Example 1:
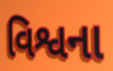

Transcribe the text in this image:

વિશ્વના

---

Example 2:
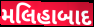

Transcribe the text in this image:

મલિહાબાદ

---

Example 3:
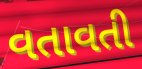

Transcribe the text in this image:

વતાવતી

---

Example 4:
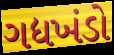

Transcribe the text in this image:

ગદ્યખંડો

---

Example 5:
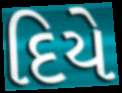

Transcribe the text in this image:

દિયે